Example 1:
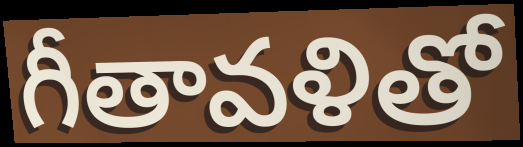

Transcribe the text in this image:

గీతావళితో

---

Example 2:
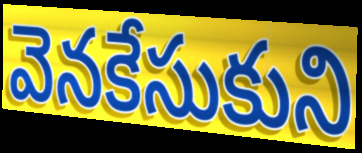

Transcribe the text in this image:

వెనకేసుకుని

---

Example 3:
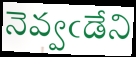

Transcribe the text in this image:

నెవ్వఁడేని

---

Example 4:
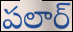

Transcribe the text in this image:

పలార్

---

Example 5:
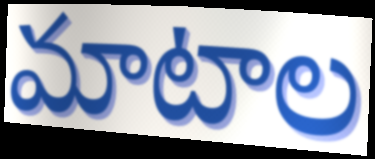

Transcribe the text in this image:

మాటాల